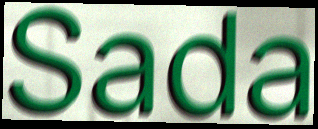
Sada